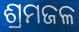
ଶ୍ରମଜଳ